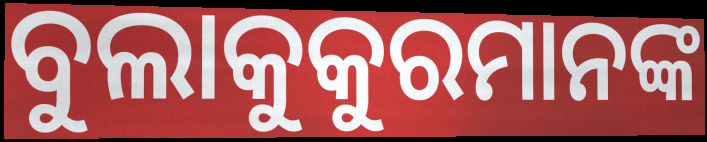
ବୁଲାକୁକୁରମାନଙ୍କ